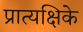
प्रात्यक्षिके